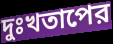
দুঃখতাপের